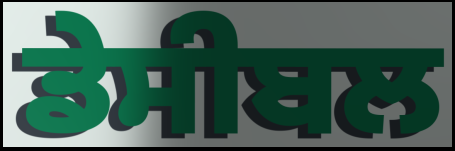
ਡੇਸੀਬਲ